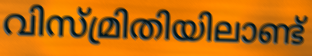
വിസ്മ്രിതിയിലാണ്ട്